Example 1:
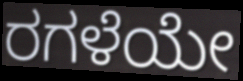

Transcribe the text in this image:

ರಗಳೆಯೇ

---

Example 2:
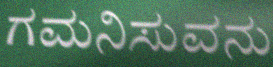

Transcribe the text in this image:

ಗಮನಿಸುವನು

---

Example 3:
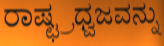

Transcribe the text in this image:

ರಾಷ್ಟ್ರಧ್ವಜವನ್ನು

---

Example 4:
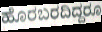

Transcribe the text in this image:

ಹೊರಬರದಿದ್ದರೂ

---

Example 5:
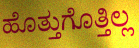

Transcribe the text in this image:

ಹೊತ್ತುಗೊತ್ತಿಲ್ಲ